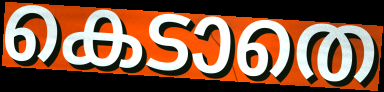
കെടാതെ